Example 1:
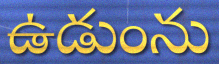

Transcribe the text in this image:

ఉడుంను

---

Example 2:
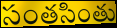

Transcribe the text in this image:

సంతసింతు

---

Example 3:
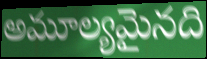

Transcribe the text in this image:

అమూల్యమైనది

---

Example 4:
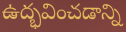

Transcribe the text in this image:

ఉద్భవించడాన్ని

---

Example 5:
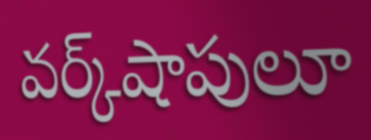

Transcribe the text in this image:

వర్క్‌షాపులూ